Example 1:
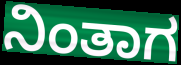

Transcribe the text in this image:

ನಿಂತಾಗ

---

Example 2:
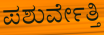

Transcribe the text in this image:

ಪಶುರ್ವೇತ್ತಿ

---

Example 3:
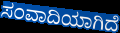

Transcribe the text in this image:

ಸಂವಾದಿಯಾಗಿದೆ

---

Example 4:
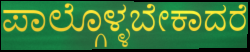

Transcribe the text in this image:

ಪಾಲ್ಗೊಳ್ಳಬೇಕಾದರೆ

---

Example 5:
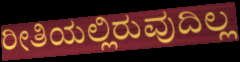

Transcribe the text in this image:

ರೀತಿಯಲ್ಲಿರುವುದಿಲ್ಲ